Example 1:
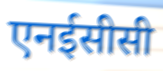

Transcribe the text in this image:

एनईसीसी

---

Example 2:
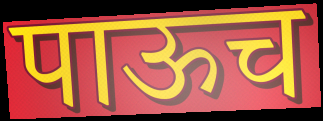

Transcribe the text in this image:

पाऊच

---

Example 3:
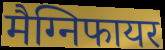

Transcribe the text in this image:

मैग्निफायर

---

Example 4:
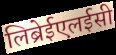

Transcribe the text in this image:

लिब्रेईएलईसी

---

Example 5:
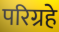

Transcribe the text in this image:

परिग्रहे